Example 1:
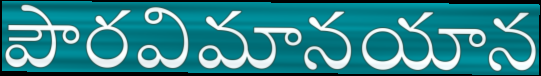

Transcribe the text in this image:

పౌరవిమానయాన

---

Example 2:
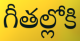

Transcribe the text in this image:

గీతల్లోకి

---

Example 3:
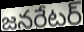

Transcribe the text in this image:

జనరేటర్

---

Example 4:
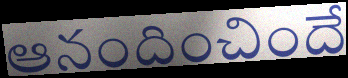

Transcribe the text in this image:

ఆనందించిందే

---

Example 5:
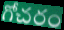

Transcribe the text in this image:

గోచరం